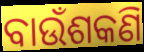
ବାଉଁଶକଣି